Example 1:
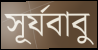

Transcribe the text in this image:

সূর্যবাবু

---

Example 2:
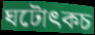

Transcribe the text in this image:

ঘটোৎকচ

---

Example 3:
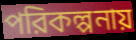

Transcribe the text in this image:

পরিকল্পনায়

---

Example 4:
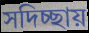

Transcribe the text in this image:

সদিচ্ছায়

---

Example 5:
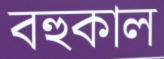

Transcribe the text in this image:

বহুকাল